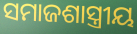
ସମାଜଶାସ୍ତ୍ରୀୟ